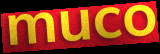
muco